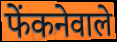
फेंकनेवाले